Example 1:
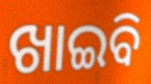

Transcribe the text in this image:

ଖାଇବି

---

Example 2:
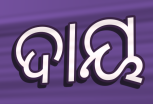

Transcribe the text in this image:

ଦାୟ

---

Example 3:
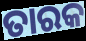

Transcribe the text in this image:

ତାରକ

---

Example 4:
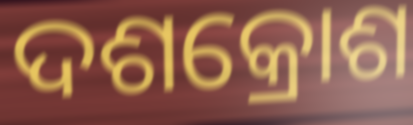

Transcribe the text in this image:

ଦଶକ୍ରୋଶ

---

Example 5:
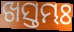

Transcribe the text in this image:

ଖସ୍ତମ୍ଭଃ